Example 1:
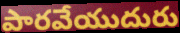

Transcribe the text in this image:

పారవేయుదురు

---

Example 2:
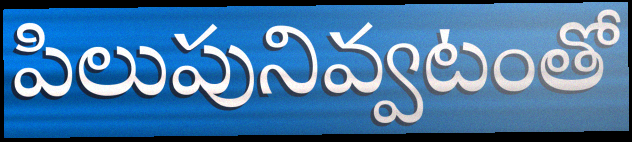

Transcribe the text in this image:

పిలుపునివ్వటంతో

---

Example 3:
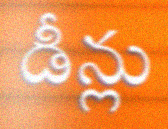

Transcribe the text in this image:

డీన్లు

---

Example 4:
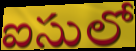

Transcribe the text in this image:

ఐసులో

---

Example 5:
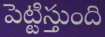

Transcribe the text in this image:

పెట్టిస్తుంది